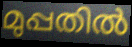
മുപ്പതിൽ